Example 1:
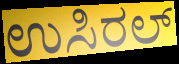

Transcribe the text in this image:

ಉಸಿರಲ್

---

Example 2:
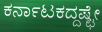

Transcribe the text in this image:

ಕರ್ನಾಟಕದ್ದಷ್ಟೇ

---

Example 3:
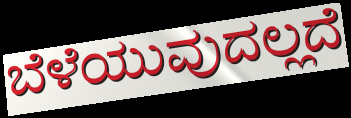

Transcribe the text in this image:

ಬೆಳೆಯುವುದಲ್ಲದೆ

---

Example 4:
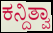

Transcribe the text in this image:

ಕನ್ದಿತ್ವಾ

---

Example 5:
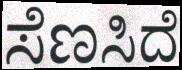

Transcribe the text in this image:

ಸೆಣಸಿದೆ